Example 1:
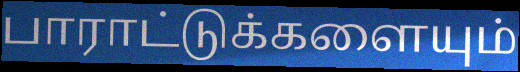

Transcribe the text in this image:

பாராட்டுக்களையும்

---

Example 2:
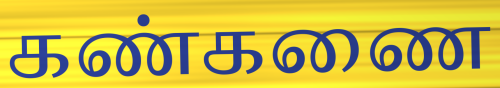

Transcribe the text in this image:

கண்கணை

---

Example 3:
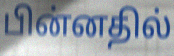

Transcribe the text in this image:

பின்னதில்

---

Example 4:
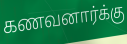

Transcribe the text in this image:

கணவனார்க்கு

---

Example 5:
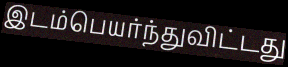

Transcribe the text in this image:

இடம்பெயர்ந்துவிட்டது